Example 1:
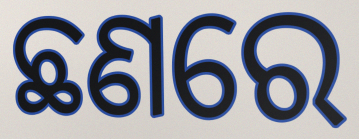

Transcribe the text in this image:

ଛଣରେ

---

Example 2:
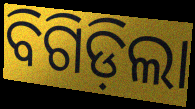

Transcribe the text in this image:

ବିଗିଡ଼ିଲା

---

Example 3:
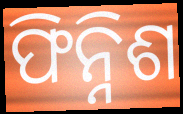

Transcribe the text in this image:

ଫିନ୍ନିଶ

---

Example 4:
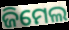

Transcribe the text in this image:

ଜିମେଲ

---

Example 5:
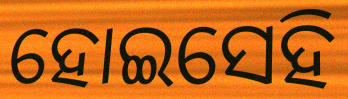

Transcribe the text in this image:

ହୋଇସେହି